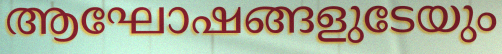
ആഘോഷങ്ങളുടേയും